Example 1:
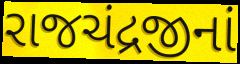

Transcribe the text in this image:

રાજચંદ્રજીનાં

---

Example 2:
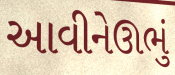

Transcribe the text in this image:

આવીનેઊભું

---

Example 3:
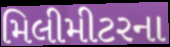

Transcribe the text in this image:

મિલીમીટરના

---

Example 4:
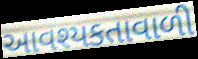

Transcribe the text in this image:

આવશ્યકતાવાળી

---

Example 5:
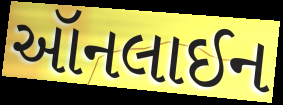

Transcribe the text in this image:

ઑનલાઈન